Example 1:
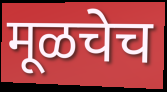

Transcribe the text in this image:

मूळचेच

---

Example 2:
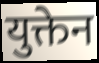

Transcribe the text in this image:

युक्तेन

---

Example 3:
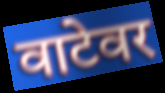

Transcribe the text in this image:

वाटेवर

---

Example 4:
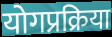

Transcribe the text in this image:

योगप्रक्रिया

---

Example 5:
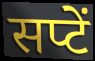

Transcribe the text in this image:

सप्टें